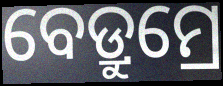
ବେଡ୍ରୁମ୍ରେ